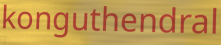
konguthendral